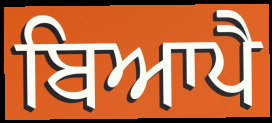
ਬਿਆਪੈ